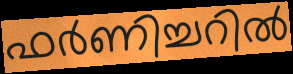
ഫർണിച്ചറിൽ